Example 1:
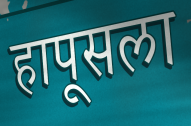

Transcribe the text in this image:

हापूसला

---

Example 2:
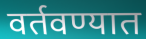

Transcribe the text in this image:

वर्तवण्यात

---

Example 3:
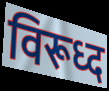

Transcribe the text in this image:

विरूध्द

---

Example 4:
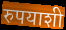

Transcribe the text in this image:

रुपयाशी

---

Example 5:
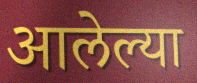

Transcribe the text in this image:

आलेल्या